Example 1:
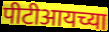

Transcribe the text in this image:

पीटीआयच्या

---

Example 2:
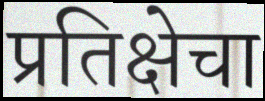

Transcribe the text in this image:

प्रतिक्षेचा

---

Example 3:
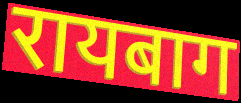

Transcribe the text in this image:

रायबाग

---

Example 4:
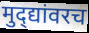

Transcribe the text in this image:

मुद्द्यांवरच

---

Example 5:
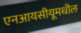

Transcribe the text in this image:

एनआयसीयूमधील